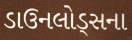
ડાઉનલોડ્સના